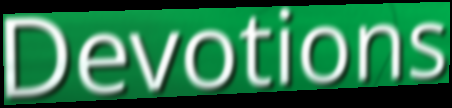
Devotions